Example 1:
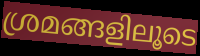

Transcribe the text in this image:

ശ്രമങ്ങളിലൂടെ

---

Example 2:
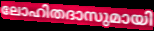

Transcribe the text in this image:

ലോഹിതദാസുമായി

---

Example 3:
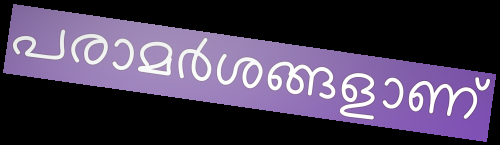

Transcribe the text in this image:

പരാമർശങ്ങളാണ്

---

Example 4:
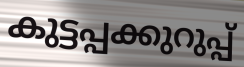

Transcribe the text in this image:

കുട്ടപ്പക്കുറുപ്പ്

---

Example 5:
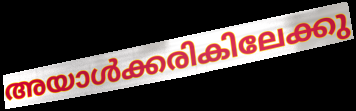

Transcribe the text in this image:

അയാൾക്കരികിലേക്കു